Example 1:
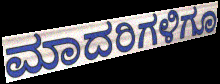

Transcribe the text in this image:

ಮಾದರಿಗಳಿಗೂ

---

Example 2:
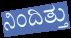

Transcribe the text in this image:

ನಿಂದಿತ್ತು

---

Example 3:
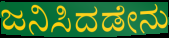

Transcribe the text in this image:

ಜನಿಸಿದಡೇನು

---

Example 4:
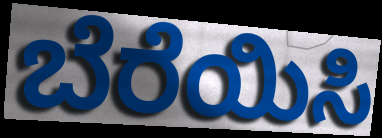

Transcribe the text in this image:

ಬೆರೆಯಿಸಿ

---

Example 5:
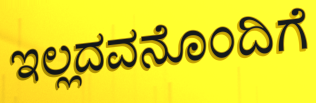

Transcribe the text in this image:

ಇಲ್ಲದವನೊಂದಿಗೆ